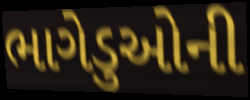
ભાગેડુઓની